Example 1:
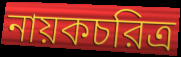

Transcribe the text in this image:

নায়কচরিত্র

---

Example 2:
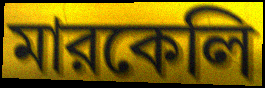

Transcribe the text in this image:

মারকেলি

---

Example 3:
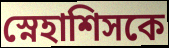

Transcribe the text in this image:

স্নেহাশিসকে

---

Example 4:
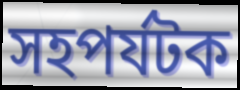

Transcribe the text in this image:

সহপর্যটক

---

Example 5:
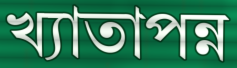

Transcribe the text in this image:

খ্যাতাপন্ন